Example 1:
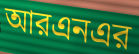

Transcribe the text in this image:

আরএনএর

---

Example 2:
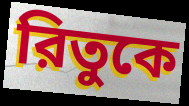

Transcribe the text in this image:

রিতুকে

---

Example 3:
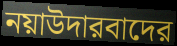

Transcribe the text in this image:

নয়াউদারবাদের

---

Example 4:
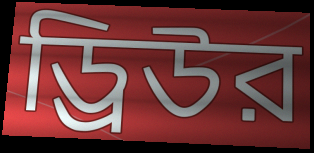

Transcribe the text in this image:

ড্রিউর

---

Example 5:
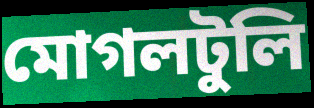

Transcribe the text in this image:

মোগলটুলি